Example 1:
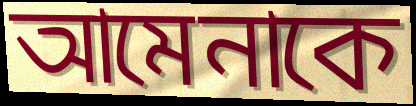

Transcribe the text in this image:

আমেনাকে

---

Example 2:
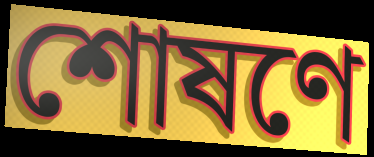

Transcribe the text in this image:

শোষণে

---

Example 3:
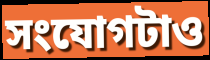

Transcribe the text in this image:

সংযোগটাও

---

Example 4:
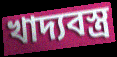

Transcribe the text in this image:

খাদ্যবস্ত্র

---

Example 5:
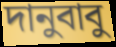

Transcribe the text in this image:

দানুবাবু